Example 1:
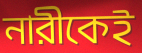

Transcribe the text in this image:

নারীকেই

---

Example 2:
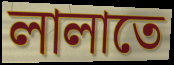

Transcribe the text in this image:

লালাতে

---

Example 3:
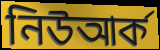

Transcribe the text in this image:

নিউআর্ক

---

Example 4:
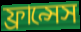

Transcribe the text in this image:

ফ্রান্সেস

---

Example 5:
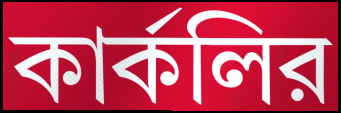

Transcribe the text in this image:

কার্কলির